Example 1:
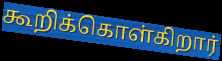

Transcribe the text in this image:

கூறிக்கொள்கிறார்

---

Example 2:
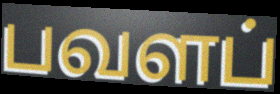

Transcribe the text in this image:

பவளப்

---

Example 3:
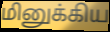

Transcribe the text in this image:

மினுக்கிய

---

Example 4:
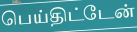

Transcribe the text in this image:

பெய்திட்டேன்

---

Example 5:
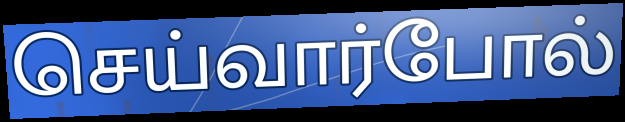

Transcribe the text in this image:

செய்வார்போல்